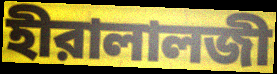
হীরালালজী